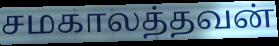
சமகாலத்தவன்